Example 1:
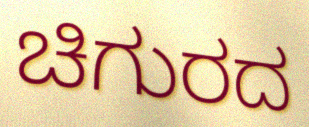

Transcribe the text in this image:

ಚಿಗುರದ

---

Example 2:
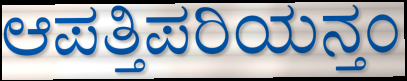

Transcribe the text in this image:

ಆಪತ್ತಿಪರಿಯನ್ತಂ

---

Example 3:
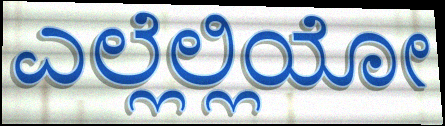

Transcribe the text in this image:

ಎಲ್ಲೆಲ್ಲಿಯೋ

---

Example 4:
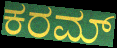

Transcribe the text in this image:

ಕರಮ್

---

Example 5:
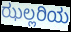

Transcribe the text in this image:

ಝಲ್ಲರಿಯ